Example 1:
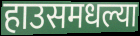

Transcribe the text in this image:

हाउसमधल्या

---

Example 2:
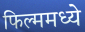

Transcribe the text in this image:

फिल्ममध्ये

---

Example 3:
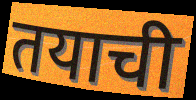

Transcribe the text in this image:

तयाची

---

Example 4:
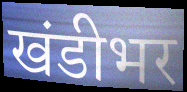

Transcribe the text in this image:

खंडीभर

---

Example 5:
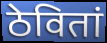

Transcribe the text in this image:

ठेवितां